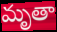
మృతా